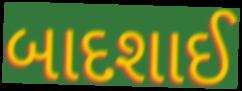
બાદશાઈ